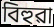
বিহুৱা